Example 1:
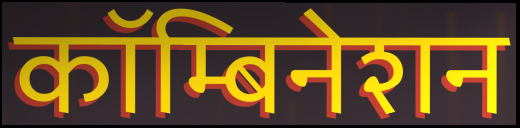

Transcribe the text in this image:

कॉम्बिनेशन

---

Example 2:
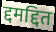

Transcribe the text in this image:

द्दमद्दित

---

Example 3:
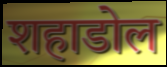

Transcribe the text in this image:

शहाडोल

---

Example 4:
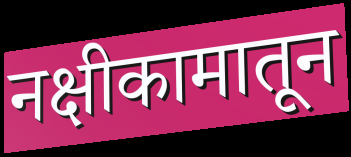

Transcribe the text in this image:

नक्षीकामातून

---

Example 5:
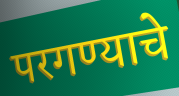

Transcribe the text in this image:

परगण्याचे